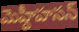
మెహ్దీహసన్